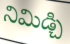
నిమిడ్చి